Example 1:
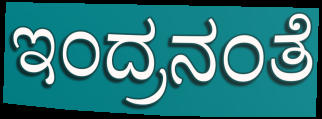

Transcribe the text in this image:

ಇಂದ್ರನಂತೆ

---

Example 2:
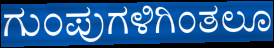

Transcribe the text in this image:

ಗುಂಪುಗಳಿಗಿಂತಲೂ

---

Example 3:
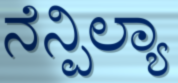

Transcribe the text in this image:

ನೆನ್ಪಿಲ್ಯಾ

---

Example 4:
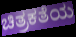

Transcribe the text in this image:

ಚಿತ್ರಕತೆಯ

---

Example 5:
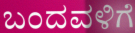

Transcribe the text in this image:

ಬಂದವಳಿಗೆ